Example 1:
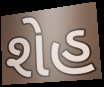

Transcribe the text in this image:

શેહ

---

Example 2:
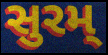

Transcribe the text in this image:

સુરમ્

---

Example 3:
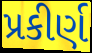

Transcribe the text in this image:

પ્રકીર્ણ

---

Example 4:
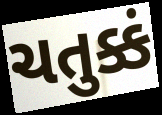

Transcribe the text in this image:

ચતુક્કં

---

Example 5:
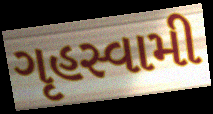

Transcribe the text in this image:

ગૃહસ્વામી